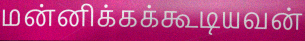
மன்னிக்கக்கூடியவன்